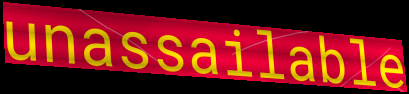
unassailable